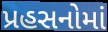
પ્રહસનોમાં